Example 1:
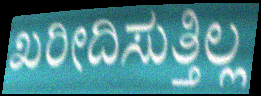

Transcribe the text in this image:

ಖರೀದಿಸುತ್ತಿಲ್ಲ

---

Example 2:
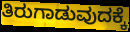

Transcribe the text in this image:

ತಿರುಗಾಡುವುದಕ್ಕೆ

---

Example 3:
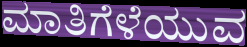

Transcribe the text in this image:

ಮಾತಿಗೆಳೆಯುವ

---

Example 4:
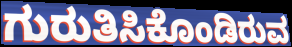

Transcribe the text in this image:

ಗುರುತಿಸಿಕೊಂಡಿರುವ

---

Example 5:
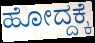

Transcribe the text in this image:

ಹೋದ್ದಕ್ಕೆ